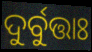
ଦୁର୍ବୁତ୍ତାଃ